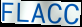
FLACC